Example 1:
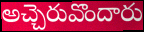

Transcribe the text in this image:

అచ్చెరువొందారు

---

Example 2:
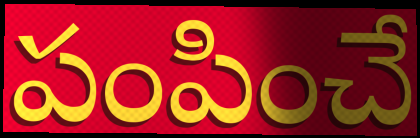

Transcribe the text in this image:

పంపించే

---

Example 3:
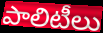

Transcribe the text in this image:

పాలిటీలు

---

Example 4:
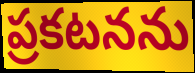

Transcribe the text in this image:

ప్రకటనను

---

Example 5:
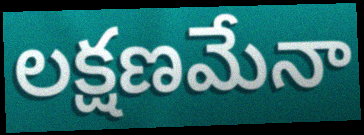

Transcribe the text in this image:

లక్షణమేనా